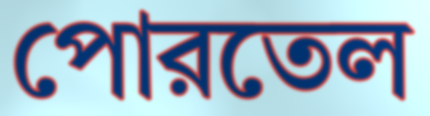
পোরতেল